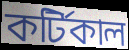
কর্টিকাল